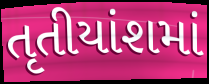
તૃતીયાંશમાં